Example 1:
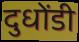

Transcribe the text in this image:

दुधोंडी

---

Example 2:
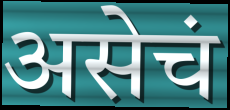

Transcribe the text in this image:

असेचं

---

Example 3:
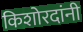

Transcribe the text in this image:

किशोरदांनी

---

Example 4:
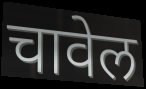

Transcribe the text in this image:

चावेल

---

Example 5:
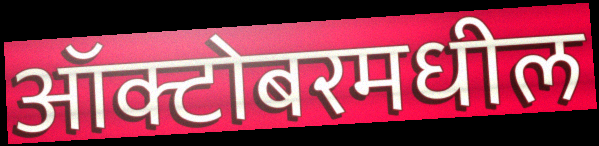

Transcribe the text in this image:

ऑक्टोबरमधील